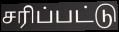
சரிப்பட்டு